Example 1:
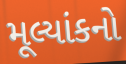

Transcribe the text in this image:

મૂલ્યાંકનો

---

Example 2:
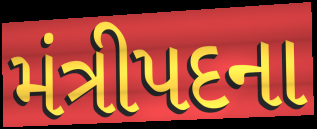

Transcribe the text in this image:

મંત્રીપદના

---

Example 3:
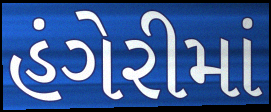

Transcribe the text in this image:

હંગેરીમાં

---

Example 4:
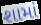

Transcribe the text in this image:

શામાં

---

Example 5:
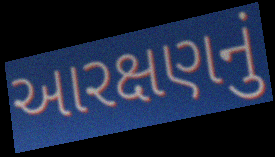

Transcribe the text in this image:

આરક્ષણનું